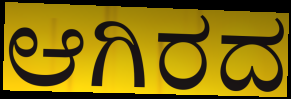
ಆಗಿರದ